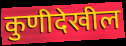
कुणीदेखील